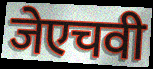
जेएचवी